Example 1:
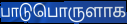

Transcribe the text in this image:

பாடுபொருளாக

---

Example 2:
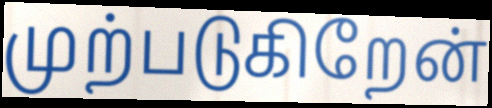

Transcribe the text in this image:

முற்படுகிறேன்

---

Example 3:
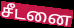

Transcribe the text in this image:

சீடனை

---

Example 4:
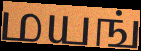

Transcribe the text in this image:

மயங்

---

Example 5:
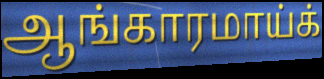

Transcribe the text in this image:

ஆங்காரமாய்க்